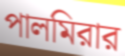
পালমিরার